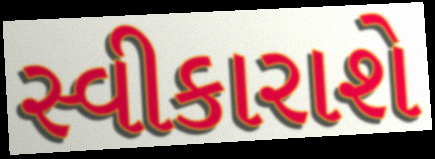
સ્વીકારાશે